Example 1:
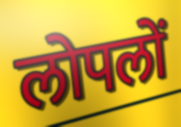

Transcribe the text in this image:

लोपलों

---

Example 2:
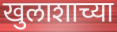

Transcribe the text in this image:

खुलाशाच्या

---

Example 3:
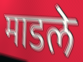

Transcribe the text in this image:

माडले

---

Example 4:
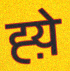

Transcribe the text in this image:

ह्य़े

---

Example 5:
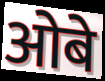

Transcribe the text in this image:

ओबे